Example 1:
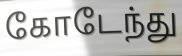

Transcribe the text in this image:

கோடேந்து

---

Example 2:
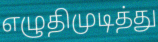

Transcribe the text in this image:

எழுதிமுடித்து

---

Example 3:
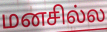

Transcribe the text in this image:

மனசில்ல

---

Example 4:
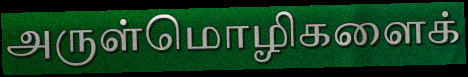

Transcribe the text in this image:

அருள்மொழிகளைக்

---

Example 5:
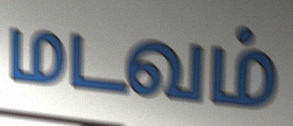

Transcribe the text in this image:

மடவம்